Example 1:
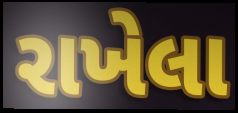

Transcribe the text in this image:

રાખેલા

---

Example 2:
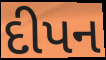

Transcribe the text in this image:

દીપન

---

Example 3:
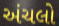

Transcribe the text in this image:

અંચલો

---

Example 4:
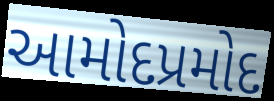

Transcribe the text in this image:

આમોદપ્રમોદ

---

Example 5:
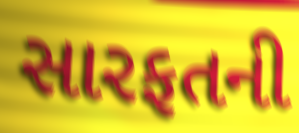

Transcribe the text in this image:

સારફતની